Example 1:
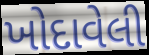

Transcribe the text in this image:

ખોદાવેલી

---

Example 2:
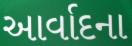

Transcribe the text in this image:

આર્વાદના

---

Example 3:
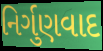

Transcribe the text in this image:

નિર્ગુણવાદ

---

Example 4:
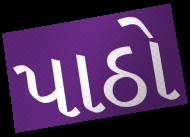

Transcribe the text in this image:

પાઠો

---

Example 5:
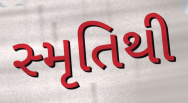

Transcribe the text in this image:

સ્મૃતિથી